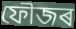
ফৌজৰ